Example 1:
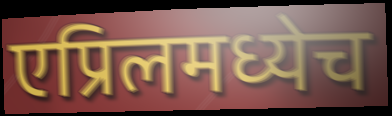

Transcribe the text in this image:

एप्रिलमध्येच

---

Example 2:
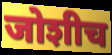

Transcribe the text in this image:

जोशीच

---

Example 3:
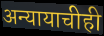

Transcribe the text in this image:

अन्यायाचीही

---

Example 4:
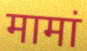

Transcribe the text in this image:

मामां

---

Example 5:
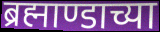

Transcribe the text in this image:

ब्रह्माण्डाच्या